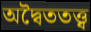
অদ্বৈততত্ত্ব